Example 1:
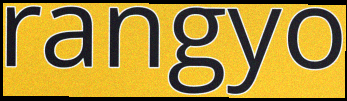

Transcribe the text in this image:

rangyo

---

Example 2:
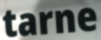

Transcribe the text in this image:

tarne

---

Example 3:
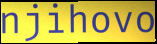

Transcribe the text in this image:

njihovo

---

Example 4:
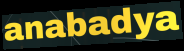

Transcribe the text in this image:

anabadya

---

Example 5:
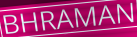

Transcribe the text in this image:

BHRAMAN